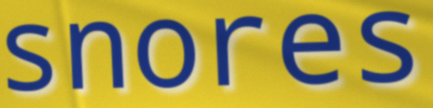
snores